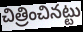
చిత్రించినట్టు